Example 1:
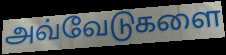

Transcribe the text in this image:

அவ்வேடுகளை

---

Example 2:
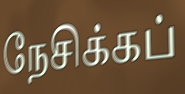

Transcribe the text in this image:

நேசிக்கப்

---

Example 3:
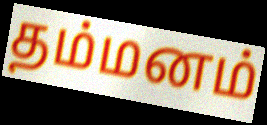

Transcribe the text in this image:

தம்மனம்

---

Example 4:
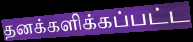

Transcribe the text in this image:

தனக்களிக்கப்பட்ட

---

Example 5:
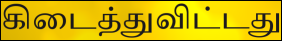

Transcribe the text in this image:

கிடைத்துவிட்டது